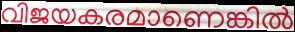
വിജയകരമാണെങ്കിൽ